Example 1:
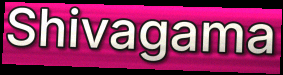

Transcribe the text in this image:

Shivagama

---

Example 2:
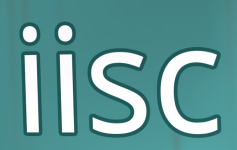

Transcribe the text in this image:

iisc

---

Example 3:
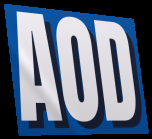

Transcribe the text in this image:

AOD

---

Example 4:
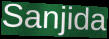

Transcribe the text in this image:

Sanjida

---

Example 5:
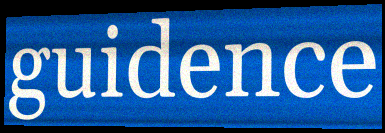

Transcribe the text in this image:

guidence